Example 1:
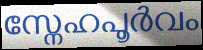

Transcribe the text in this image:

സ്നേഹപൂർവം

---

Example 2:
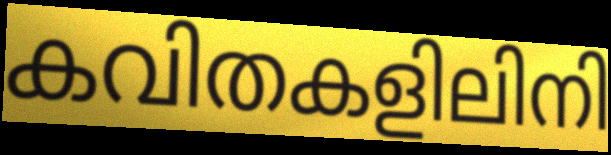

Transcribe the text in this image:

കവിതകളിലിനി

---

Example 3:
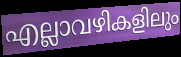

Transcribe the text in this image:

എല്ലാവഴികളിലും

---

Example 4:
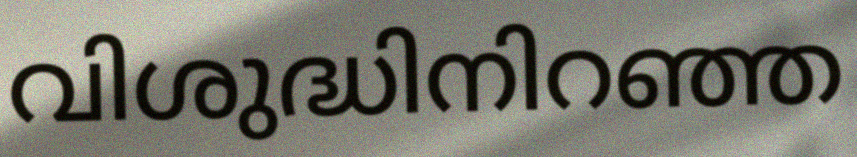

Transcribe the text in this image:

വിശുദ്ധിനിറഞ്ഞ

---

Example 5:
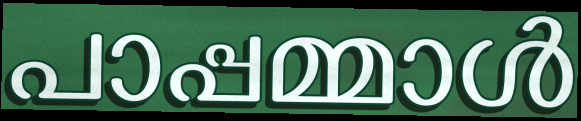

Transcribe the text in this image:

പാപ്പമ്മാൾ